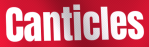
Canticles